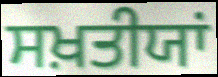
ਸਖ਼ਤੀਯਾਂ